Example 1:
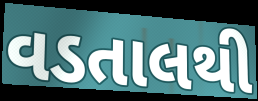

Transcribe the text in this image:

વડતાલથી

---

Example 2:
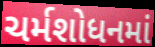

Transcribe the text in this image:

ચર્મશોધનમાં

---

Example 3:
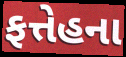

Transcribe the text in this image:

ફત્તેહના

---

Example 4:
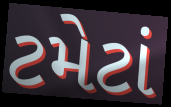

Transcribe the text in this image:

ટમેટાં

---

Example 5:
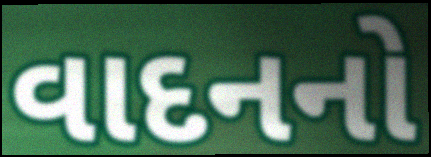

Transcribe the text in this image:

વાદનનો